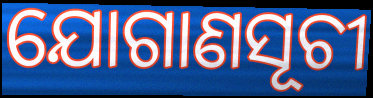
ଯୋଗାଣସୂଚୀ